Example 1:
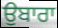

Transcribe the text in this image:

ਉਬਾਰਾ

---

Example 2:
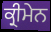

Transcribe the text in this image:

ਕ੍ਰੀਮੇਨ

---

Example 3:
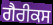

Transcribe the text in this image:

ਗੈਰੀਕਸ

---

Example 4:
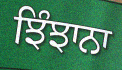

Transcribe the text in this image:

ਝਿੰਝਾਨਾ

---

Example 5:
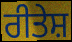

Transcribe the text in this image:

ਰੀਤੇਸ਼